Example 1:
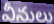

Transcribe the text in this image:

వీనులు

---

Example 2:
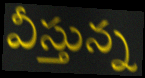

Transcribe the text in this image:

వీస్తున్న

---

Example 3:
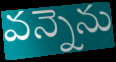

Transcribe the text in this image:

వన్నెను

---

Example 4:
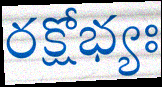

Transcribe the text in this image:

రక్షోభ్యః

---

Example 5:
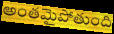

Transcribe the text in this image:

అంతమైపోతుంది